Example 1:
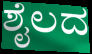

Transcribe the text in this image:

ಶೈಲದ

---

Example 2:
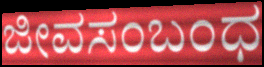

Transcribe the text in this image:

ಜೀವಸಂಬಂಧ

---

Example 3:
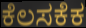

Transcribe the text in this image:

ಕೆಲಸಕೆಕ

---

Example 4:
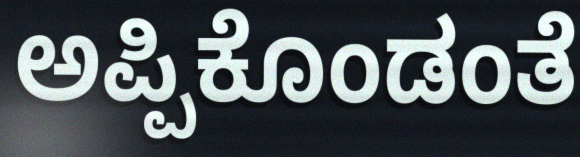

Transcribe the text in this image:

ಅಪ್ಪಿಕೊಂಡಂತೆ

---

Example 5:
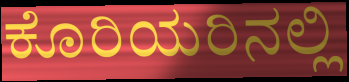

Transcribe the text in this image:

ಕೊರಿಯರಿನಲ್ಲಿ